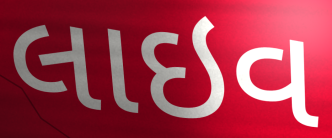
લાઇવ